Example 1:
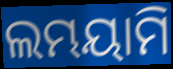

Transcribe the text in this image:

ଲମ୍ଭୟାମି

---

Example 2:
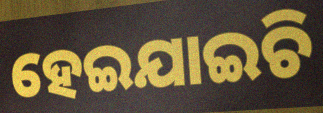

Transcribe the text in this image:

ହେଇଯାଇଚି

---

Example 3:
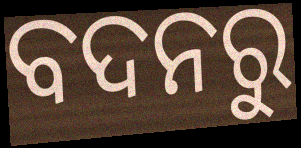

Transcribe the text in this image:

ବଦନରୁ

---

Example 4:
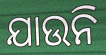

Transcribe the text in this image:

ଯାଉନି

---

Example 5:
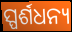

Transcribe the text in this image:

ସ୍ପର୍ଶଧନ୍ୟ